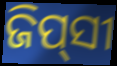
ଜିପ୍‍ସୀ